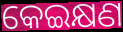
କେଇକ୍ଷଣ